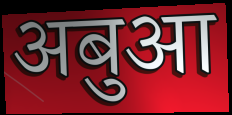
अबुआ